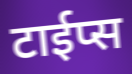
टाईप्स